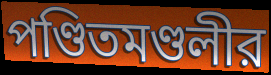
পণ্ডিতমণ্ডলীর